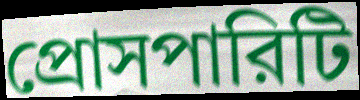
প্রোসপারিটি